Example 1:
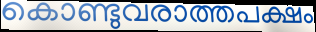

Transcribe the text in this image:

കൊണ്ടുവരാത്തപക്ഷം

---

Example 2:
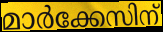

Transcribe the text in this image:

മാർക്കേസിന്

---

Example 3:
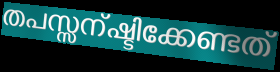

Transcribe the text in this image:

തപസ്സന്ഷ്ടിക്കേണ്ടത്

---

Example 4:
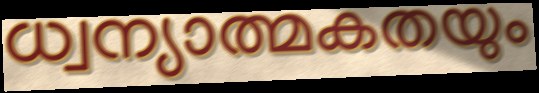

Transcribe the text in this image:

ധ്വന്യാത്മകതയും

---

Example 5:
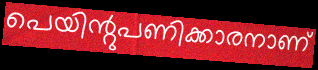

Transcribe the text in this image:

പെയിന്റുപണിക്കാരനാണ്